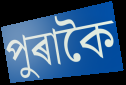
পুৰাকৈ